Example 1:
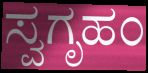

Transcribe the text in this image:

ಸ್ವಗೃಹಂ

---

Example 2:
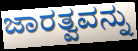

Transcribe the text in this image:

ಜಾರತ್ವವನ್ನು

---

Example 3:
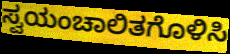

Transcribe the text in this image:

ಸ್ವಯಂಚಾಲಿತಗೊಳಿಸಿ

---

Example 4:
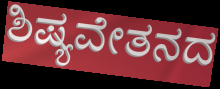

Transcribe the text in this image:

ಶಿಷ್ಯವೇತನದ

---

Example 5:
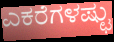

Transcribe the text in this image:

ಎಕರೆಗಳಷ್ಟು